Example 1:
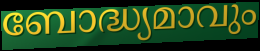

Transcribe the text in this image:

ബോദ്ധ്യമാവും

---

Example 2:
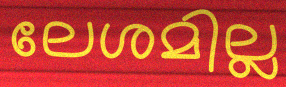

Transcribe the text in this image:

ലേശമില്ല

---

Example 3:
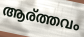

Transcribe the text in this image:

ആര്ത്തവം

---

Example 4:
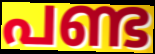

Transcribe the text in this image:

പണ്ട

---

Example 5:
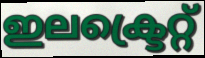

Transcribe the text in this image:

ഇലക്ട്രെറ്റ്